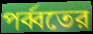
পর্ব্বতের